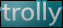
trolly